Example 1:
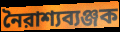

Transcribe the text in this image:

নৈরাশ্যব্যঞ্জক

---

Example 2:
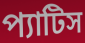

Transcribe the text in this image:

প্যাটিস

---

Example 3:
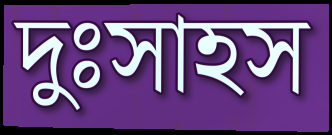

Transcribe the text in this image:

দুঃসাহস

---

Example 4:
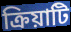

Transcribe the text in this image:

ক্রিয়াটি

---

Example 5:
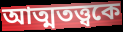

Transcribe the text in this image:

আত্মতত্ত্বকে